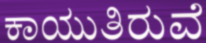
ಕಾಯುತಿರುವೆ